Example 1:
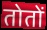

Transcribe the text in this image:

तोतों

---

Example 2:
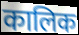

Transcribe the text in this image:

कालिक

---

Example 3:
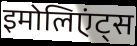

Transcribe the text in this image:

इमोलिएंट्स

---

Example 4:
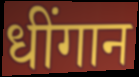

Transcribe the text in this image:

धींगान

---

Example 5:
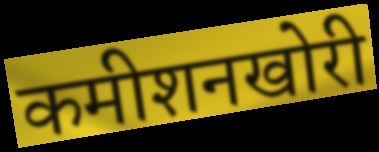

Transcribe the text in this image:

कमीशनखोरी